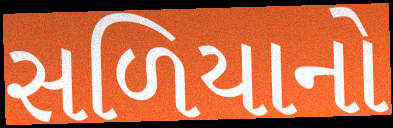
સળિયાનો